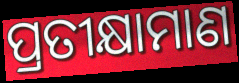
ପ୍ରତୀକ୍ଷାମାଣ